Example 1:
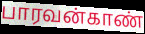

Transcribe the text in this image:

பாரவன்காண்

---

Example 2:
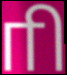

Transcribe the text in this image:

ரி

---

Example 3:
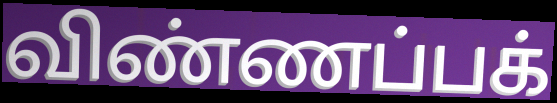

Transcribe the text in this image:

விண்ணப்பக்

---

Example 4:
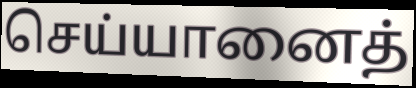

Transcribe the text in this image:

செய்யானைத்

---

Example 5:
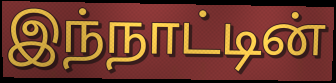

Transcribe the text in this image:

இந்நாட்டின்